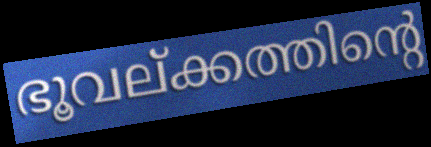
ഭൂവല്ക്കത്തിന്റെ